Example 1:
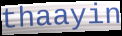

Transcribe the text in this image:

thaayin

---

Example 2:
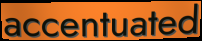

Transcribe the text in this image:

accentuated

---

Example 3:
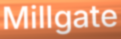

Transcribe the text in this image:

Millgate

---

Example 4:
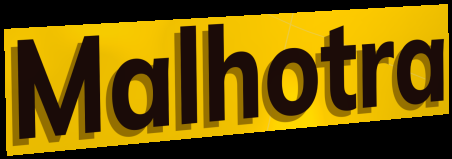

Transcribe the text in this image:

Malhotra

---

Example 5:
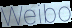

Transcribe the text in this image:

Weibo